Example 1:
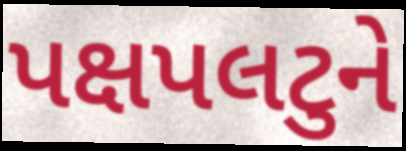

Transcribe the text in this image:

પક્ષપલટુને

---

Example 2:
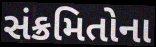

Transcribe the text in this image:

સંક્રમિતોના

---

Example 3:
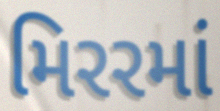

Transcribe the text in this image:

મિરરમાં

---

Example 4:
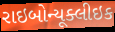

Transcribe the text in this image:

રાઇબોન્યૂક્લીઇક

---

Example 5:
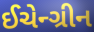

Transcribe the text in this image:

ઈચેન્ગ્રીન